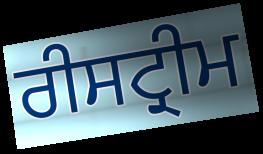
ਰੀਸਟ੍ਰੀਮ